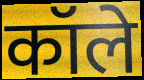
कॉले